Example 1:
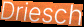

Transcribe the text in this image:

Driesch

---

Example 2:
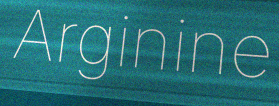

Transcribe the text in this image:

Arginine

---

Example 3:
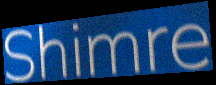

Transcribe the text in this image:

Shimre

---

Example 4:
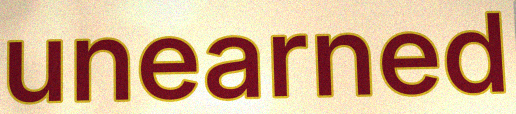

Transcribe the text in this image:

unearned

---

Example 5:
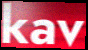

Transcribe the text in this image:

kav